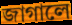
জাগালে